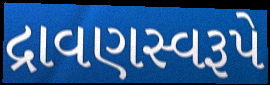
દ્રાવણસ્વરૂપે